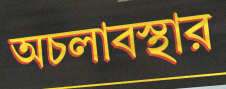
অচলাবস্থার